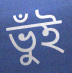
ভুঁই